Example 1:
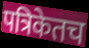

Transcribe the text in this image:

पत्रिकेतच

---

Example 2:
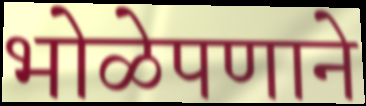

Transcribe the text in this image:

भोळेपणाने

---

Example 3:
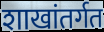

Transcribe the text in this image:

शाखांतर्गत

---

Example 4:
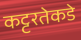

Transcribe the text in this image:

कट्टरतेकडे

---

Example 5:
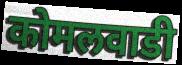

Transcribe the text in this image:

कोमलवाडी